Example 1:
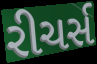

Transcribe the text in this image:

રીચર્સ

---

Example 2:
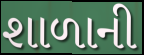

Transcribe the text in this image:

શાળાની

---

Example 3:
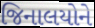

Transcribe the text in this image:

જિનાલયોને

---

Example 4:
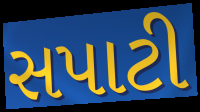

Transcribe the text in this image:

સપાટી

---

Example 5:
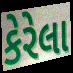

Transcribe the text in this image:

કેરેલા